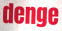
denge